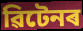
ৱিটেনৰ